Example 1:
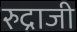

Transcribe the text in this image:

रुद्राजी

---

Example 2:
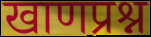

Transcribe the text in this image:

खाणप्रश्न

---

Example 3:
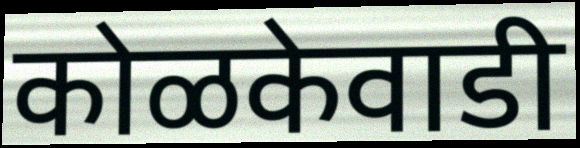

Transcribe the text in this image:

कोळकेवाडी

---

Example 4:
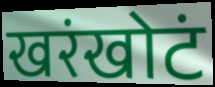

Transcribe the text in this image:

खरंखोटं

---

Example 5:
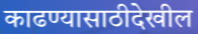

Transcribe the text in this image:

काढण्यासाठीदेखील